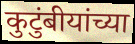
कुटुंबीयांच्या